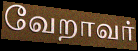
வேறாவர்